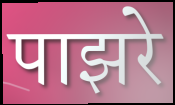
पाझरे